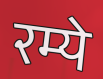
रम्ये